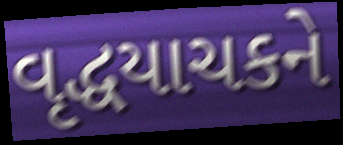
વૃદ્ધયાચકને